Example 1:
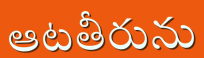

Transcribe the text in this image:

ఆటతీరును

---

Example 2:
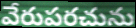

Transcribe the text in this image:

వేరుపరచును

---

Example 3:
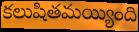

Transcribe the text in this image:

కలుషితమయ్యింది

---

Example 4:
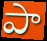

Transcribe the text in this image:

పా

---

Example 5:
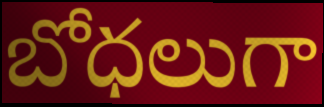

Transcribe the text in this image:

బోధలుగా